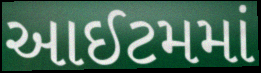
આઈટમમાં